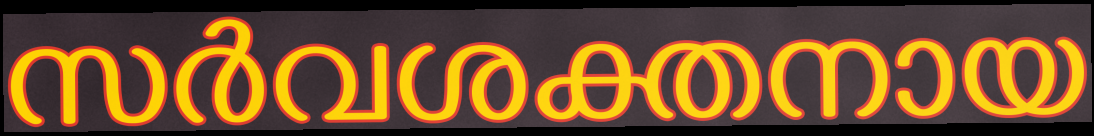
സർവശക്തനായ